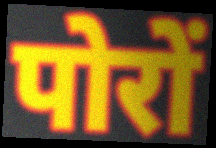
पोरों